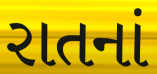
રાતનાં